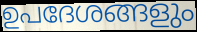
ഉപദേശങ്ങളും